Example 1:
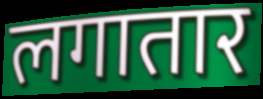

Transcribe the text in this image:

लगातार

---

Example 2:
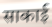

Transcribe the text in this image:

साकाई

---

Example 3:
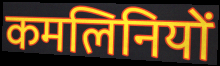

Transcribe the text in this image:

कमलिनियों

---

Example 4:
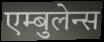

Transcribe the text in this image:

एम्बुलेन्स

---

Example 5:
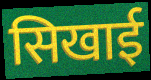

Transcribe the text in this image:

सिखाई